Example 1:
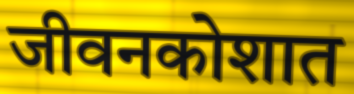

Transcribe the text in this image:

जीवनकोशात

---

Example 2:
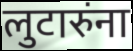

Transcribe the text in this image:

लुटारुंना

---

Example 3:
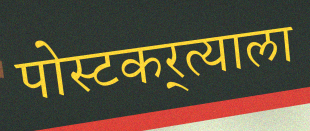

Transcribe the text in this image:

पोस्टकर्त्याला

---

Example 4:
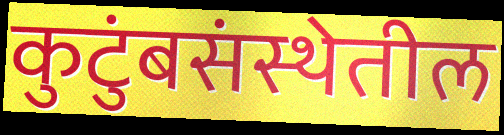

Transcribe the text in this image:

कुटुंबसंस्थेतील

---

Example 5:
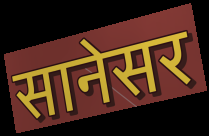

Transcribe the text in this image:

सानेसर